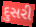
દુસરી